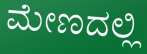
ಮೇಣದಲ್ಲಿ